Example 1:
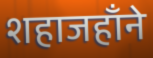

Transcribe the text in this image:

शहाजहाँने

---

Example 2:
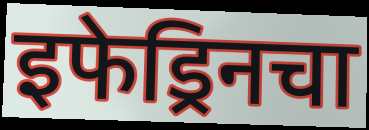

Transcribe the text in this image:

इफेड्रिनचा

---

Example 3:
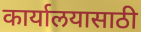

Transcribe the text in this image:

कार्यालयासाठी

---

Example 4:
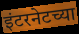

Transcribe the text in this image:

इंटरनेटच्या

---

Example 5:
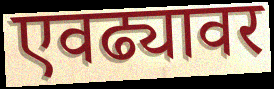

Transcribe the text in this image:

एवढ्यावर